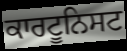
ਕਾਰਟੂਨਿਸਟ